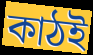
কাঠই